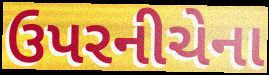
ઉપરનીચેના